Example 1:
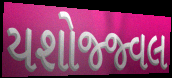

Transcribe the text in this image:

યશોજ્જ્વલ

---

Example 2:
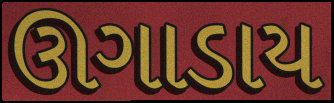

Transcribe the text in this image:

ઊગાડાય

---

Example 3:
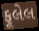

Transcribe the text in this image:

ફૂલેલ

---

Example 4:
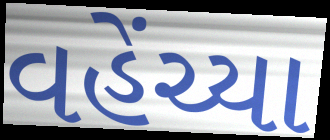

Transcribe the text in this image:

વહેંચ્યા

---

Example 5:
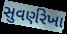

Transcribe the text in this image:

સુવર્ણરેખા